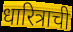
धारित्राची